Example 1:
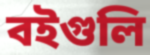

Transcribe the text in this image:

বইগুলি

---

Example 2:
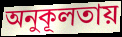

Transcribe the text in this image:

অনুকূলতায়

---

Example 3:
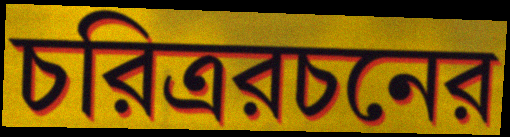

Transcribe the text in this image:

চরিত্ররচনের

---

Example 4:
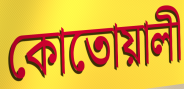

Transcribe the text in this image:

কোতোয়ালী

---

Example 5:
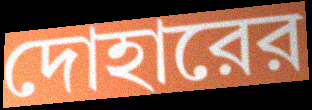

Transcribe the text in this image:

দোহারের